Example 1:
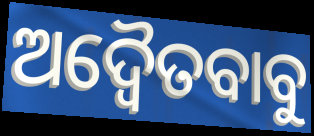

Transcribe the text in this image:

ଅଦ୍ୱୈତବାବୁ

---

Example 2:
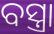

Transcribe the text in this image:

ବସ୍ତ୍ରା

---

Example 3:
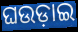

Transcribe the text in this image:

ଘଉଡ଼ାଇ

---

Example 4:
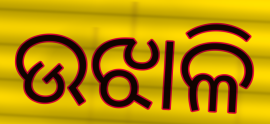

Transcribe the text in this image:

ଉଝାଳି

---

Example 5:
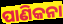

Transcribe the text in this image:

ପାଣିକନା